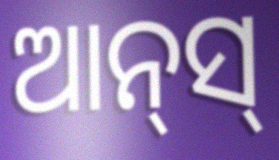
ଆନ୍‌ସ୍